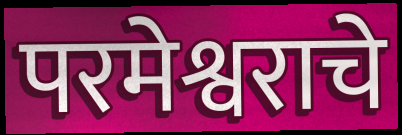
परमेश्वराचे